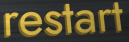
restart